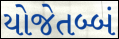
યોજેતબ્બં